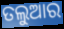
ତଲୁଆର